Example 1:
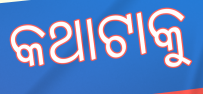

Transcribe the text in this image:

କଥାଟାକୁ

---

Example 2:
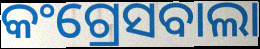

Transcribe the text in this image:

କଂଗ୍ରେସବାଲା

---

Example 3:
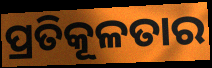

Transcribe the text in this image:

ପ୍ରତିକୂଳତାର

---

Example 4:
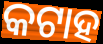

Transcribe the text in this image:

କଟାହ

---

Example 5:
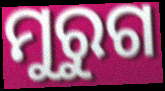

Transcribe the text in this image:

ମୁରୁଗ